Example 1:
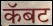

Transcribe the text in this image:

कॅबट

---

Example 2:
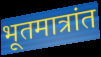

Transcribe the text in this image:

भूतमात्रांत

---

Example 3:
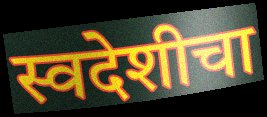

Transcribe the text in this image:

स्वदेशीचा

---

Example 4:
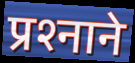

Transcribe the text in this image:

प्रश्नाने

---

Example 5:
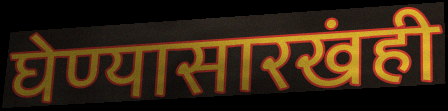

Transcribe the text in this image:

घेण्यासारखंही